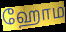
ஹோம